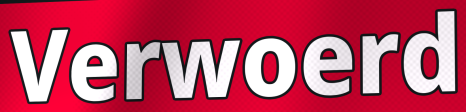
Verwoerd